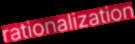
rationalization